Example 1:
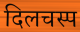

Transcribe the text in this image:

दिलचस्प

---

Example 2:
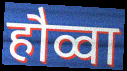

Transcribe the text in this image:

हौव्वा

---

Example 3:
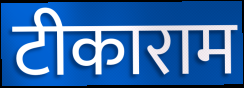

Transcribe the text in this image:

टीकाराम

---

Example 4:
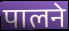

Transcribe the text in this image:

पालने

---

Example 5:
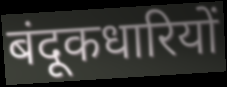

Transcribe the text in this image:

बंदूकधारियों